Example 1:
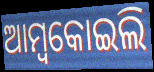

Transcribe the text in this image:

ଆମ୍ବକୋଇଲି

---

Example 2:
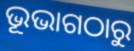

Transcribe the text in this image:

ଭୂଭାଗଠାରୁ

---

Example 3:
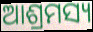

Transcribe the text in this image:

ଆଶ୍ରମସ୍ୟ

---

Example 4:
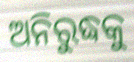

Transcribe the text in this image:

ଅନିରୁଦ୍ଧକୁ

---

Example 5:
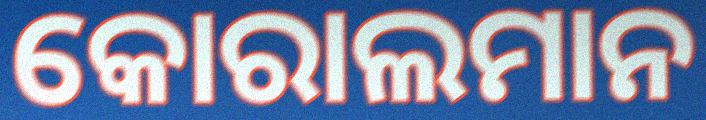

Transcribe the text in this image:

କୋରାଲମାନ